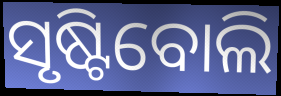
ସୃଷ୍ଟିବୋଲି